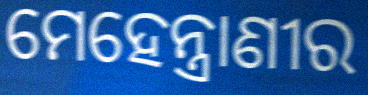
ମେହେନ୍ତ୍ରାଣୀର